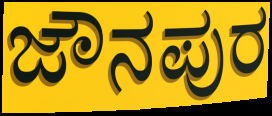
ಜೌನಪುರ